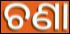
ଚଣା